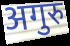
अगुरु